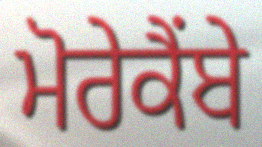
ਮੋਰੇਕੈਂਬੇ